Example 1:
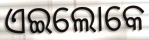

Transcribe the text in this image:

ଏଇଲୋକେ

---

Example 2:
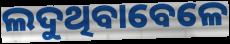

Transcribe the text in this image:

ଲଦୁଥିବାବେଳେ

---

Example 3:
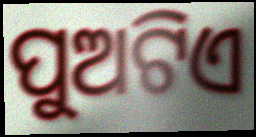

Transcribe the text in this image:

ପୁଅଟିଏ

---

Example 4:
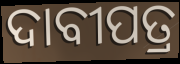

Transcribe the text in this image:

ଦାବୀପତ୍ର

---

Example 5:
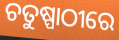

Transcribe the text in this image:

ଚତୁଷ୍ପାଠୀରେ